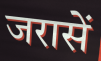
जरासें